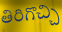
తిరిగొచ్చి